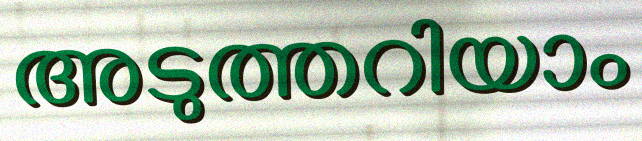
അടുത്തറിയാം